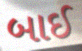
બાઈ